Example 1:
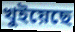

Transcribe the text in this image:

খুইয়েছে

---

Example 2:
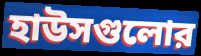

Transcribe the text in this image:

হাউসগুলোর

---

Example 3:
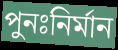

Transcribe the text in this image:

পুনঃনির্মান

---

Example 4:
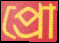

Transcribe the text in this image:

প্রো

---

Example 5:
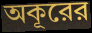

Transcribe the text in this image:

অকূরের